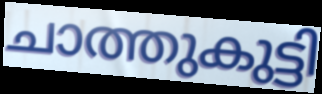
ചാത്തുകുട്ടി